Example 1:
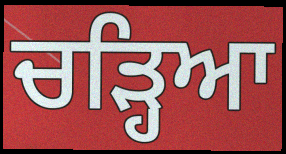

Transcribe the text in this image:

ਚੜ੍ਹਿਆ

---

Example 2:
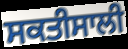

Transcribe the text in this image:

ਸਕਤੀਸਾਲੀ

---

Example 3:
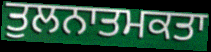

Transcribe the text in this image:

ਤੁਲਨਾਤਮਕਤਾ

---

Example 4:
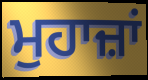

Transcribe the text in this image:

ਮੁਹਾਜ਼ਾਂ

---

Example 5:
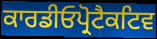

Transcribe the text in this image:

ਕਾਰਡੀਓਪ੍ਰੋਟੈਕਟਿਵ